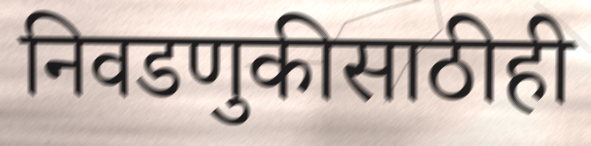
निवडणुकीसाठीही